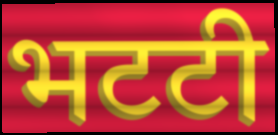
भटटी